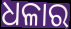
ଧଳାର